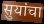
सुयांचा